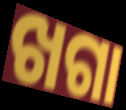
ଖଗା